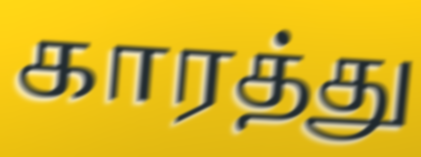
காரத்து